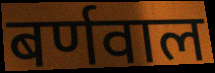
बर्णवाल